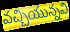
వచ్చియున్నవి